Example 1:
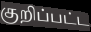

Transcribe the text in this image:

குறிப்பட்ட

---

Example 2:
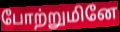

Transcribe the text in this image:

போற்றுமினே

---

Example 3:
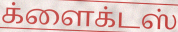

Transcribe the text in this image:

க்ளைக்டஸ்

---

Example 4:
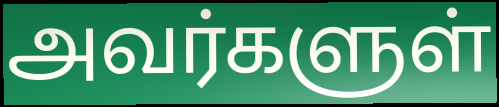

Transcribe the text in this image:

அவர்களுள்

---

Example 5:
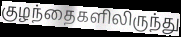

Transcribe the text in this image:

குழந்தைகளிலிருந்து